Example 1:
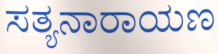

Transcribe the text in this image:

ಸತ್ಯನಾರಾಯಣ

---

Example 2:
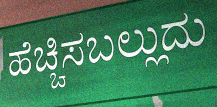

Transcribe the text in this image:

ಹೆಚ್ಚಿಸಬಲ್ಲುದು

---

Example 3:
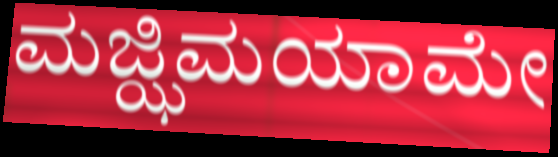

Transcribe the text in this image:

ಮಜ್ಝಿಮಯಾಮೇ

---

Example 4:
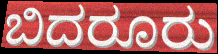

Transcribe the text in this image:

ಬಿದರೂರು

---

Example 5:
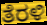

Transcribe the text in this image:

ತೆರಳಿ